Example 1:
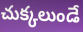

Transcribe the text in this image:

చుక్కలుండే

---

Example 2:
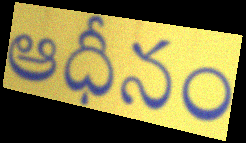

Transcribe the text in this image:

ఆధీనం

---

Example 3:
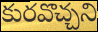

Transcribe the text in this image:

కురవొచ్చని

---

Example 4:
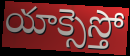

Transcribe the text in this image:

యాక్సెస్తో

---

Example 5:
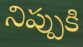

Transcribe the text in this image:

నిప్పుకి